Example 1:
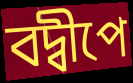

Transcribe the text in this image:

বদ্বীপে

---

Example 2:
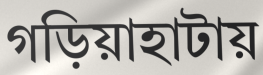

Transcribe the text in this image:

গড়িয়াহাটায়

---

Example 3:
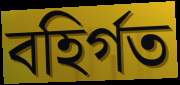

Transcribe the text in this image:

বহির্গত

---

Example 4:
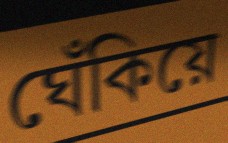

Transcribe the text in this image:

ঘেঁকিয়ে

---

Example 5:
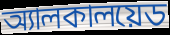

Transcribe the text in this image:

অ্যালকালয়েড